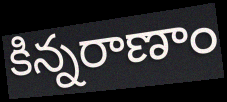
కిన్నరాణాం